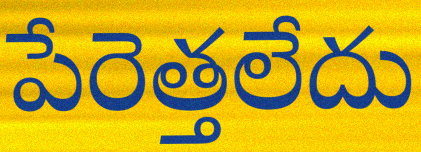
పేరెత్తలేదు